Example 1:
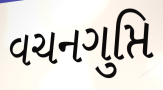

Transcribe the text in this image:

વચનગુપ્તિ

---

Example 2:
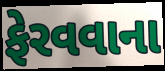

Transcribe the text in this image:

ફેરવવાના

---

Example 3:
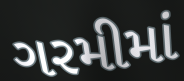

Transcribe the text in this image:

ગરમીમાં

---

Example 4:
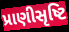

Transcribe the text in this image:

પ્રાણીસૃષ્ટિ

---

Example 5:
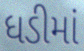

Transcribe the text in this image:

ધડીમાં